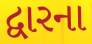
દ્વારના